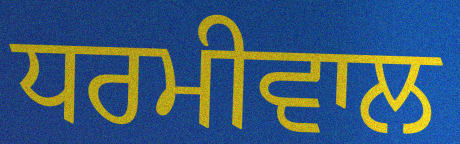
ਧਰਮੀਵਾਲ